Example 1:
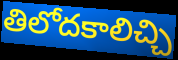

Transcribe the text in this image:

తిలోదకాలిచ్చి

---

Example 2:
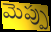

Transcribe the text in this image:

మెప్పు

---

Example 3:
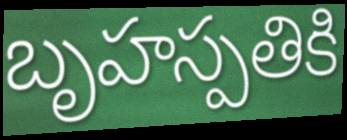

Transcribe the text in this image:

బృహస్పతికి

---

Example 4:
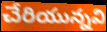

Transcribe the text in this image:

చేరియున్నవి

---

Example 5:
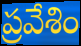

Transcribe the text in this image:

ప్రవేశిం